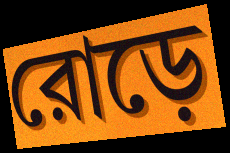
রোড়ে